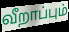
வீறாப்பும்